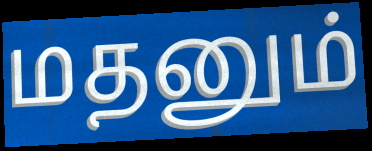
மதனும்